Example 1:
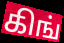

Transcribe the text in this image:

கிங்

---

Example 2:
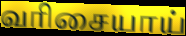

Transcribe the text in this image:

வரிசையாய்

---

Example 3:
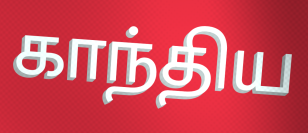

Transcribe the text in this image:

காந்திய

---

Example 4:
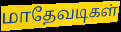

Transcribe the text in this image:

மாதேவடிகள்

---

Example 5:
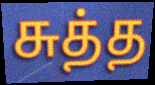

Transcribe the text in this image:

சுத்த